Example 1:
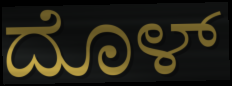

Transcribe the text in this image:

ದೊಳ್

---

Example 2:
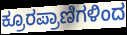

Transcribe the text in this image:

ಕ್ರೂರಪ್ರಾಣಿಗಳಿಂದ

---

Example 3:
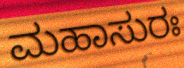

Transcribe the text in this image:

ಮಹಾಸುರಃ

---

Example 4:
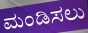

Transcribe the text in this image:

ಮಂಡಿಸಲು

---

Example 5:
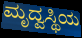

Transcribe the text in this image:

ಮೃದ್ವಸ್ಥಿಯ